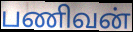
பணிவன்